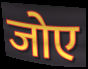
जोए